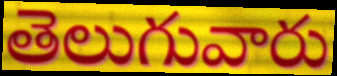
తెలుగువారు